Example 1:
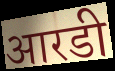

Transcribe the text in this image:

आरडी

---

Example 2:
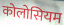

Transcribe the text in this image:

कोलोसियम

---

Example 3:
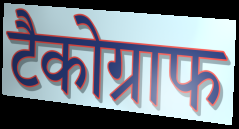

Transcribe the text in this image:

टैकोग्राफ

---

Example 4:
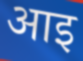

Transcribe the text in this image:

आइ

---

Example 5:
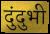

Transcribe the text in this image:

दुंदुभी